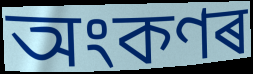
অংকণৰ